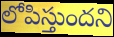
లోపిస్తుందని